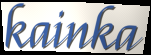
kainka